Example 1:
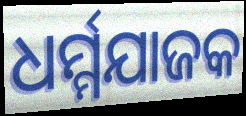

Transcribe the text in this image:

ଧର୍ମ୍ମଯାଜକ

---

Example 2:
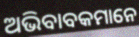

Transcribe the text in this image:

ଅଭିବାବକମାନେ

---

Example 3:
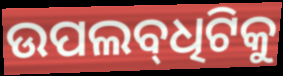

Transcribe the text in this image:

ଉପଲବ୍‌ଧିଟିକୁ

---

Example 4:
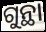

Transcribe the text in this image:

ଗୁନ୍ଥା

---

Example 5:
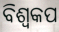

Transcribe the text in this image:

ବିଶ୍ୱକପ